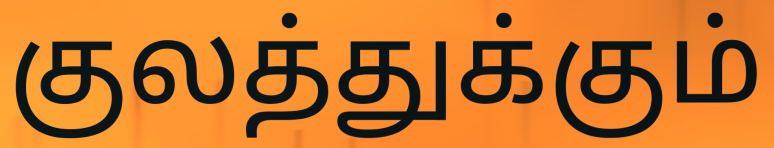
குலத்துக்கும்